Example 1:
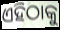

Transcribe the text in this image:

ଏହିଠାକୁ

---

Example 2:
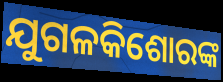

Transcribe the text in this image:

ଯୁଗଳକିଶୋରଙ୍କ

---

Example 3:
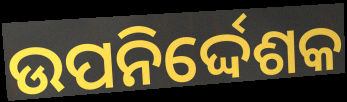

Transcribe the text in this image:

ଉପନିର୍ଦ୍ଦେଶକ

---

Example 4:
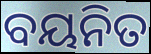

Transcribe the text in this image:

ବୟନିତ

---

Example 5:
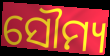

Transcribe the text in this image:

ସୌମ୍ଯ